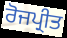
ਰੋਜਪ੍ਰੀਤ